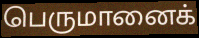
பெருமானைக்